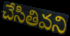
చేసితివని